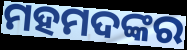
ମହମଦଙ୍କର